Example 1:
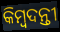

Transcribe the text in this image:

କିମ୍ଵଦନ୍ତୀ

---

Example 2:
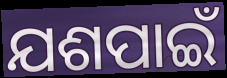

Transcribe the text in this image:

ଯଶପାଇଁ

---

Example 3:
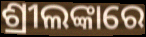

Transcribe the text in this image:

ଶ୍ରୀଲଙ୍କାରେ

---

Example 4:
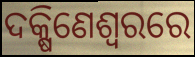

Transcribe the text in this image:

ଦକ୍ଷିଣେଶ୍ୱରରେ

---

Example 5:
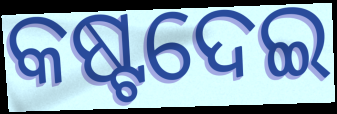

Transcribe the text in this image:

କଷ୍ଟଦେଇ